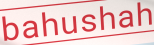
bahushah